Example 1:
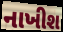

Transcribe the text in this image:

નાખીશ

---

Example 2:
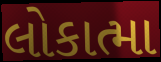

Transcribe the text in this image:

લોકાત્મા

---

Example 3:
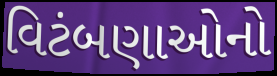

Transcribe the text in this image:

વિટંબણાઓનો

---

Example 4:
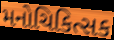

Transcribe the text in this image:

મનોચિકિત્સક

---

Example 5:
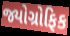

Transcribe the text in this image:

જ્યોગ્રોફિક